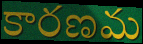
కారణమ